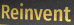
Reinvent